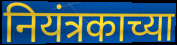
नियंत्रकाच्या